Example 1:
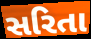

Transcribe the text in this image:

સરિતા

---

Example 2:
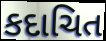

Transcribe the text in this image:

કદાચિત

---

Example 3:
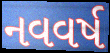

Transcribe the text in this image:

નવવર્ષ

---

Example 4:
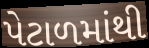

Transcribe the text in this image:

પેટાળમાંથી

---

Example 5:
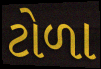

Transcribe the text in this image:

ટોળા